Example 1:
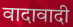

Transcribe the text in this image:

वादावादी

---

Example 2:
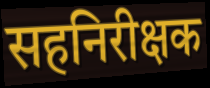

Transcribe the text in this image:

सहनिरीक्षक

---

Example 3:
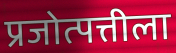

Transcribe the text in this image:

प्रजोत्पत्तीला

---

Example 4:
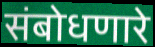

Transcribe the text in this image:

संबोधणारे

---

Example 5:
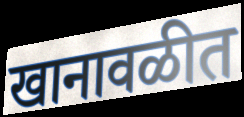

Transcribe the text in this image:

खानावळीत